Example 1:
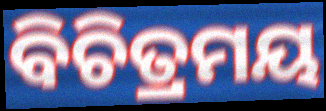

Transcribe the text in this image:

ବିଚିତ୍ରମୟ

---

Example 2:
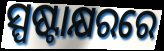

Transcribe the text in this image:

ସ୍ପଷ୍ଟାକ୍ଷରରେ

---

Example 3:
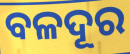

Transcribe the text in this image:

ବଳଦୂର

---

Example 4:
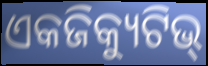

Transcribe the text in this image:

ଏକଜିକ୍ୟୁଟିଭ୍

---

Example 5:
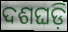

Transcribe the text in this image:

ଦଶଘଡ଼ି